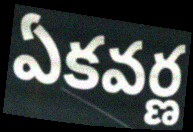
ఏకవర్ణ